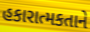
હકારાત્મકતાને